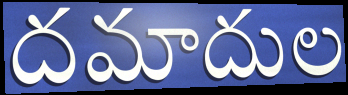
దమాదుల